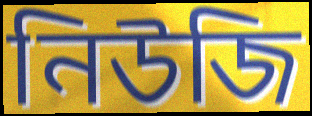
নিউজি